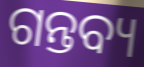
ଗନ୍ତବ୍ୟ